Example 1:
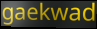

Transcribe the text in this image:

gaekwad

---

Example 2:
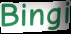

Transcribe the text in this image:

Bingi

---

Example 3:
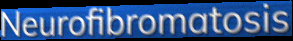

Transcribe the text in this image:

Neurofibromatosis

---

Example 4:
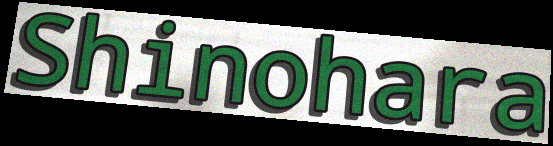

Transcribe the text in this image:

Shinohara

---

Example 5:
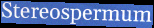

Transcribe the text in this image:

Stereospermum